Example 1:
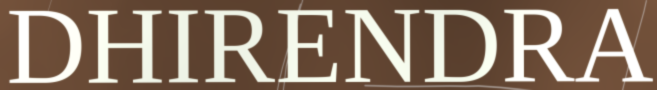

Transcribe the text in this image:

DHIRENDRA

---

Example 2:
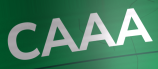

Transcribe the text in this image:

CAAA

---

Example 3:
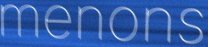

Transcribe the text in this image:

menons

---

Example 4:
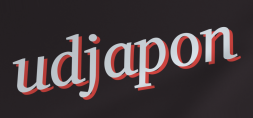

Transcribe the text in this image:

udjapon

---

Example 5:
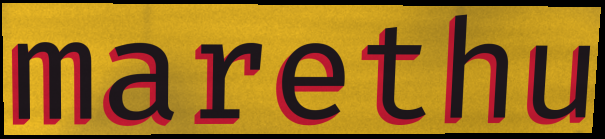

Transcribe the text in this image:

marethu